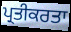
ਪ੍ਰਤੀਕਰਤਾ